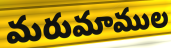
మరుమాముల